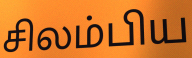
சிலம்பிய